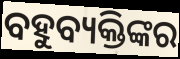
ବହୁବ୍ୟକ୍ତିଙ୍କର